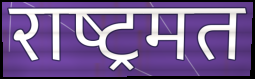
राष्ट्रमत